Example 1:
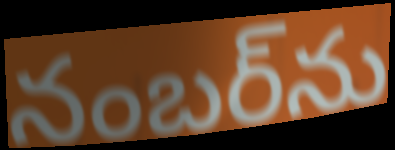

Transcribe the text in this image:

నంబర్‌ను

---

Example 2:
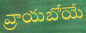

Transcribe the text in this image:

వ్రాయబోయే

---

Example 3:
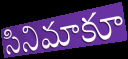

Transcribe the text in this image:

సినిమాకూ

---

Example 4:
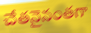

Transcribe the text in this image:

చేతనైనంతగా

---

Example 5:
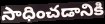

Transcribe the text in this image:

సాధించడానికి